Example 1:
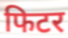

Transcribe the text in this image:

फिटर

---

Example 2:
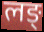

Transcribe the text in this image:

लङ्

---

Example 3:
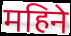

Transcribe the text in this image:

महिने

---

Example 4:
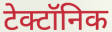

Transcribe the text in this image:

टेक्टॉनिक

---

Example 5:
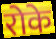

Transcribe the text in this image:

रोके